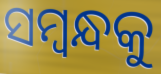
ସମ୍ବନ୍ଧକୁ